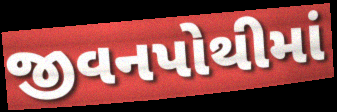
જીવનપોથીમાં